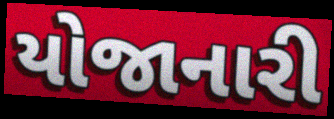
યોજાનારી